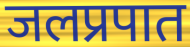
जलप्रपात